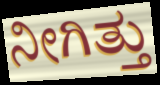
ನೀಗಿತ್ತು